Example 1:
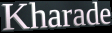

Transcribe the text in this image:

Kharade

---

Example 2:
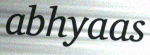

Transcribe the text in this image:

abhyaas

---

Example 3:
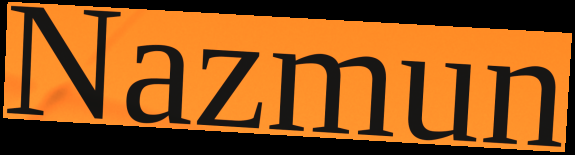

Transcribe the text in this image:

Nazmun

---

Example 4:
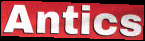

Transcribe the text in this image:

Antics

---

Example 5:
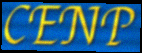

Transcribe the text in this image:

CENP